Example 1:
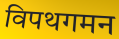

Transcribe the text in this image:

विपथगमन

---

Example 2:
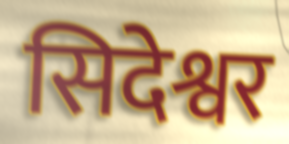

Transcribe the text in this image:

सिदेश्वर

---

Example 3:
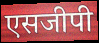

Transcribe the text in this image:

एसजीपी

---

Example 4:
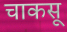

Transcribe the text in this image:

चाकसू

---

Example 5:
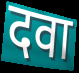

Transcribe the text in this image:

दवा